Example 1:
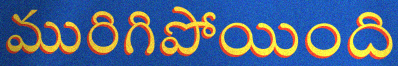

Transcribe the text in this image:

మురిగిపోయింది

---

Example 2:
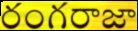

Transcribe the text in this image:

రంగరాజా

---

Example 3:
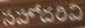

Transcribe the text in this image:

సహోదరివి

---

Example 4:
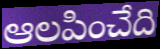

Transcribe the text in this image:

ఆలపించేది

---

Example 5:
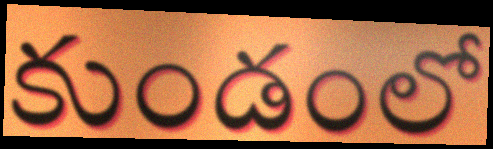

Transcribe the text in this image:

కుండంలో